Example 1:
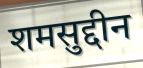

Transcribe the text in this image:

शमसुद्दीन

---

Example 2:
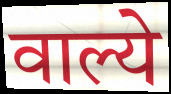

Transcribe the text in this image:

वाल्ये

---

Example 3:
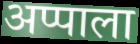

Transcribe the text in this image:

अप्पाला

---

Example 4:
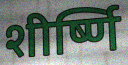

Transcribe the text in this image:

शीर्ष्णि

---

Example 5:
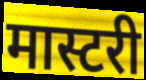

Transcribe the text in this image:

मास्टरी